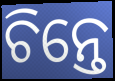
ଚିନ୍ତେ